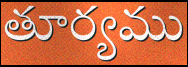
తూర్యము